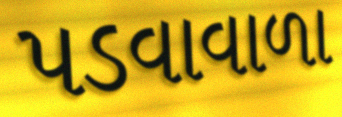
પડવાવાળા